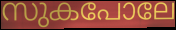
സുകപോലേ